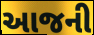
આજની